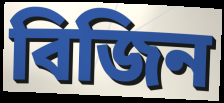
বিজিন